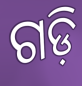
ଗଡ଼ି